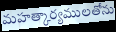
మహత్కార్యములతోను